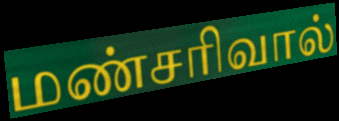
மண்சரிவால்